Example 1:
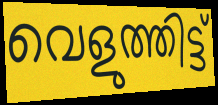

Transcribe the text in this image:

വെളുത്തിട്ട്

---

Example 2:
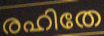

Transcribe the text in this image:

രഹിതേ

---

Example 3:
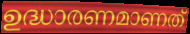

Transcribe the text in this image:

ഉദ്ധാരണമാണത്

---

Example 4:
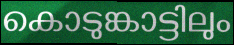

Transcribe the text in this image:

കൊടുങ്കാട്ടിലും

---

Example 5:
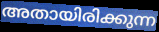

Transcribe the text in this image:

അതായിരിക്കുന്ന